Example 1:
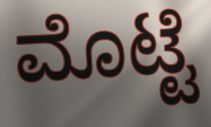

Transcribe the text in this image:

ಮೊಟ್ಟೆ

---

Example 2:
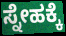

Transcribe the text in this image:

ಸ್ನೇಹಕ್ಕೆ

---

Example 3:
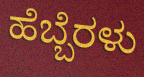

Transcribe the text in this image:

ಹೆಬ್ಬೆರಳು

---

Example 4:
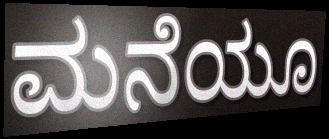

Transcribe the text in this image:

ಮನೆಯೂ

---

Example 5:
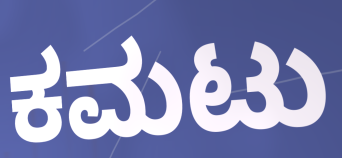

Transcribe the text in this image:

ಕಮಟು